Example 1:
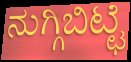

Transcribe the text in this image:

ನುಗ್ಗಿಬಿಟ್ಟೆ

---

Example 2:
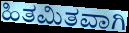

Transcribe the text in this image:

ಹಿತಮಿತವಾಗಿ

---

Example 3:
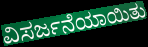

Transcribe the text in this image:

ವಿಸರ್ಜನೆಯಾಯಿತು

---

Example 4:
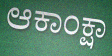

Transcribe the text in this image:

ಆಕಾಂಕ್ಷಾ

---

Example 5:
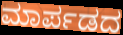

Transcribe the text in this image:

ಮಾರ್ಪಡದ